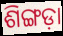
ଶିଙ୍ଗଡ଼ା